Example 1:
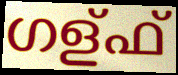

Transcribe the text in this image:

ഗള്ഫ്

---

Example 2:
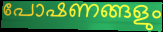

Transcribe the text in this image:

പോഷണങ്ങളും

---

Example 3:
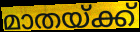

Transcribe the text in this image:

മാതയ്ക്ക്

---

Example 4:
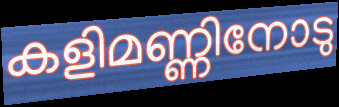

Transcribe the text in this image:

കളിമണ്ണിനോടു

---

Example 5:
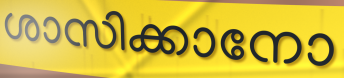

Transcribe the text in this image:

ശാസിക്കാനോ